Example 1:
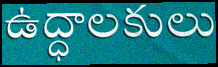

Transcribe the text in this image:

ఉద్ధాలకులు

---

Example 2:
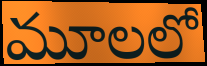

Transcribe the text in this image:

మూలలో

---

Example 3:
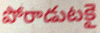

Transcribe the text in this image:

పోరాడుటకై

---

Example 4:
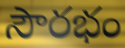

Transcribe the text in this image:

సౌరభం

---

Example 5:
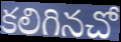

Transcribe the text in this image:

కలిగినచో